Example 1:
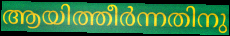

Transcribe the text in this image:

ആയിത്തീർന്നതിനു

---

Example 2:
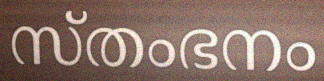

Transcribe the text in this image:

സ്തംഭനം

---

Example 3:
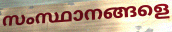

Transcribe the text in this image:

സംസ്ഥാനങ്ങളെ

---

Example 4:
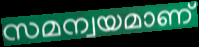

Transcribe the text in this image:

സമന്വയമാണ്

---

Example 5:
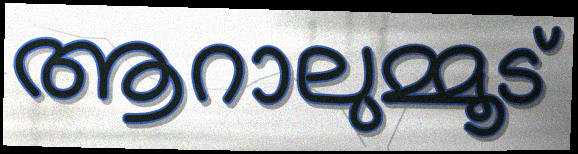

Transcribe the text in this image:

ആറാലുമ്മൂട്